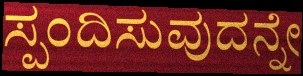
ಸ್ಪಂದಿಸುವುದನ್ನೇ